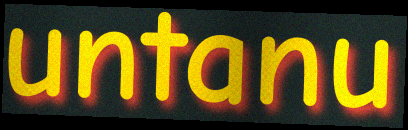
untanu